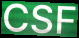
CSF